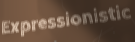
Expressionistic